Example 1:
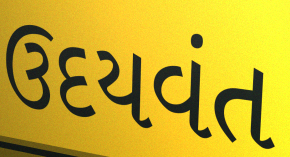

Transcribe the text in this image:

ઉદયવંત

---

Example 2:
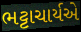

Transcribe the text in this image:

ભટ્ટાચાર્યએ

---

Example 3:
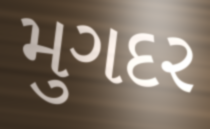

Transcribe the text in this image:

મુગદર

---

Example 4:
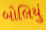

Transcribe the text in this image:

બોલિયું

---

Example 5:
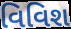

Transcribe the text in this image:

વિવિશ